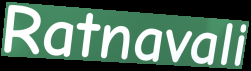
Ratnavali